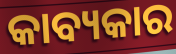
କାବ୍ୟକାର